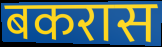
बकरास